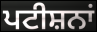
ਪਟੀਸ਼ਨਾਂ